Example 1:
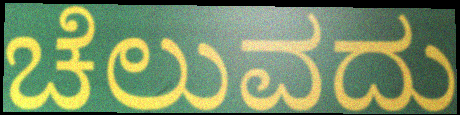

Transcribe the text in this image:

ಚೆಲುವದು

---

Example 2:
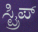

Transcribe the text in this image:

ಸ್ಟ್ರಿಪ್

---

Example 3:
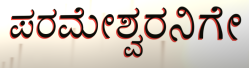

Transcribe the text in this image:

ಪರಮೇಶ್ವರನಿಗೇ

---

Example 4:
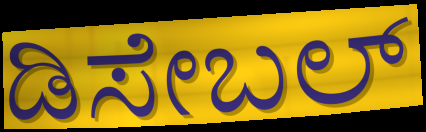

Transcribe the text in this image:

ಡಿಸೇಬಲ್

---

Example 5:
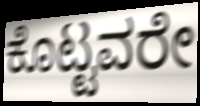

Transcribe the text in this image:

ಕೊಟ್ಟವರೇ